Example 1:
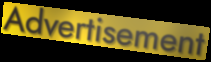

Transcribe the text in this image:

Advertisement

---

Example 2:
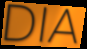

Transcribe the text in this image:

DIA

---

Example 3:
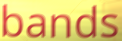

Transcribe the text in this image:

bands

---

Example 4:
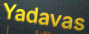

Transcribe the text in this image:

Yadavas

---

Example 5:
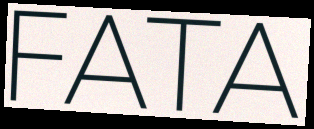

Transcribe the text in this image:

FATA